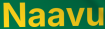
Naavu